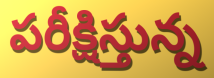
పరీక్షిస్తున్న